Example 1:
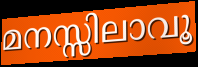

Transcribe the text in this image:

മനസ്സിലാവൂ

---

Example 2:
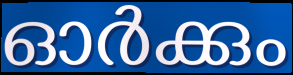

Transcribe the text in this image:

ഓർക്കും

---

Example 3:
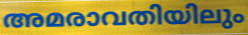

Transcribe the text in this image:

അമരാവതിയിലും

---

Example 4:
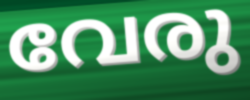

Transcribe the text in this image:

വേരു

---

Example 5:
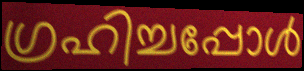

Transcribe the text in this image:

ഗ്രഹിച്ചപ്പോൾ